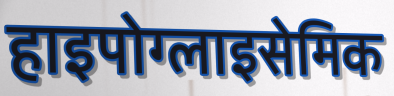
हाइपोग्लाइसेमिक